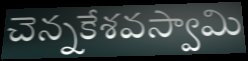
చెన్నకేశవస్వామి